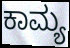
ಕಾಮ್ಯ